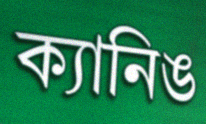
ক্যানিঙ